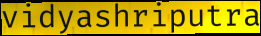
vidyashriputra